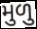
મુળુ